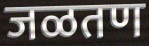
जळतण